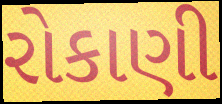
રોકાણી